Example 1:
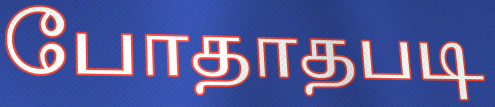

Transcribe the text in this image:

போதாதபடி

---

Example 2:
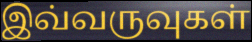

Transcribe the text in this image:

இவ்வருவுகள்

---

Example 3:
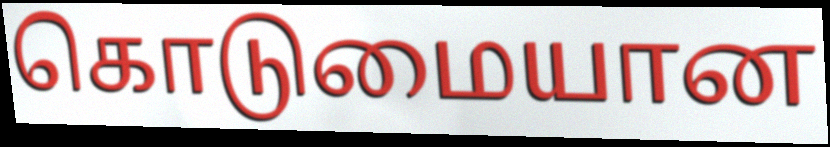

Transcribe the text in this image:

கொடுமையான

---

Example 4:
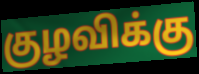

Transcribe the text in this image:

குழவிக்கு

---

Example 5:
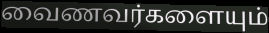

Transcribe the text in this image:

வைணவர்களையும்